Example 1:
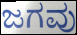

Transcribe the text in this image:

ಜಗವು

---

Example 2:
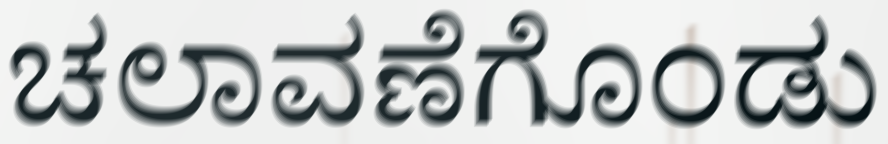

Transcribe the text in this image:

ಚಲಾವಣೆಗೊಂಡು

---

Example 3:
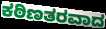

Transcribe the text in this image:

ಕಠಿಣತರವಾದ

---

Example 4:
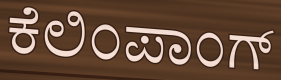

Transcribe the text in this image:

ಕೆಲಿಂಪಾಂಗ್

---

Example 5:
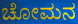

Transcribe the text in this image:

ಚೋಮನ